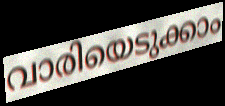
വാരിയെടുക്കാം